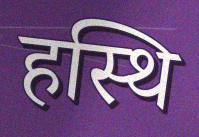
हस्थि